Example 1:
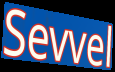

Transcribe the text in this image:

Sevvel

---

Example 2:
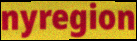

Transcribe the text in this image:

nyregion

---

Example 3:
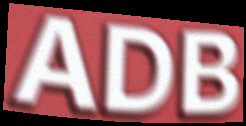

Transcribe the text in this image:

ADB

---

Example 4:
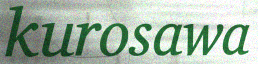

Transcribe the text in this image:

kurosawa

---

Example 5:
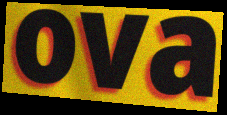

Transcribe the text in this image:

ova